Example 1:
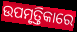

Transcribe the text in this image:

ଉପମୃତ୍ତିକାରେ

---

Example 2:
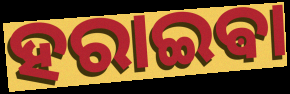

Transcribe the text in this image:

ହରାଇଵା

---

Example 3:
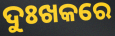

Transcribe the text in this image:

ଦୁଃଖକରେ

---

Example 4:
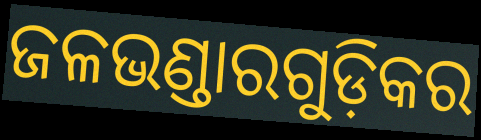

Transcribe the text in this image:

ଜଳଭଣ୍ଡାରଗୁଡ଼ିକର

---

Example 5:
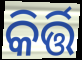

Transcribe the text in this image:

କିର୍ତ୍ତି